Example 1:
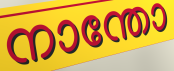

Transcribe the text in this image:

നാന്തോ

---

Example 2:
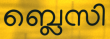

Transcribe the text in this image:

ബ്ലെസി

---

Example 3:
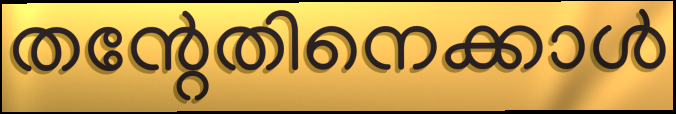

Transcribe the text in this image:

തന്റേതിനെക്കാൾ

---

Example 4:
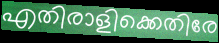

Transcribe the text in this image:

എതിരാളിക്കെതിരേ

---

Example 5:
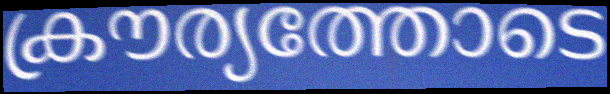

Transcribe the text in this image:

ക്രൗര്യത്തോടെ